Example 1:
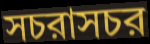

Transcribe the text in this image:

সচরাসচর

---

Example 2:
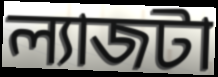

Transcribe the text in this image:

ল্যাজটা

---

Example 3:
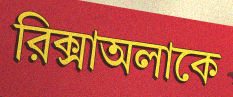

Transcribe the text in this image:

রিক্সাঅলাকে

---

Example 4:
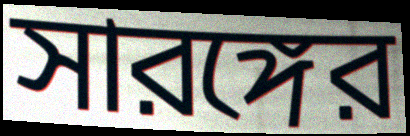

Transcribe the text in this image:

সারঙ্গের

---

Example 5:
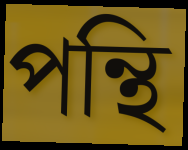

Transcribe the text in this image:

পন্থি